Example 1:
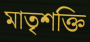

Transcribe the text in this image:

মাতৃশক্তি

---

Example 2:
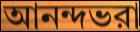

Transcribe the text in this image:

আনন্দভরা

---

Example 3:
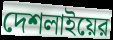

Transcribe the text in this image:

দেশলাইয়ের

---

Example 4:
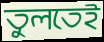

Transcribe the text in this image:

তুলতেই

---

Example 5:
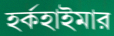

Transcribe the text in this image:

হর্কহাইমার